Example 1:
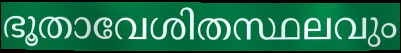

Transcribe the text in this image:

ഭൂതാവേശിതസ്ഥലവും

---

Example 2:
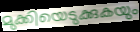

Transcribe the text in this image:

മുക്കിയെടുക്കുകയും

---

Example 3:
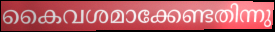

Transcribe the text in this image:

കൈവശമാക്കേണ്ടതിന്നു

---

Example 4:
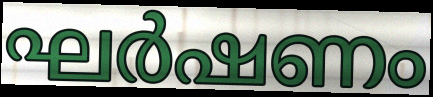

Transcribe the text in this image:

ഘർഷണം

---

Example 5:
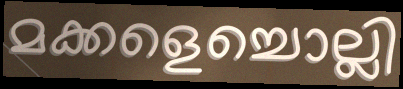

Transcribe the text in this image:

മക്കളെച്ചൊല്ലി